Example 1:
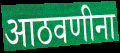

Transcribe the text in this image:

आठवणीना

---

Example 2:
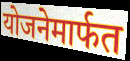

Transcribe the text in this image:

योजनेमार्फत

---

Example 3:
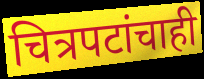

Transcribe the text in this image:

चित्रपटांचाही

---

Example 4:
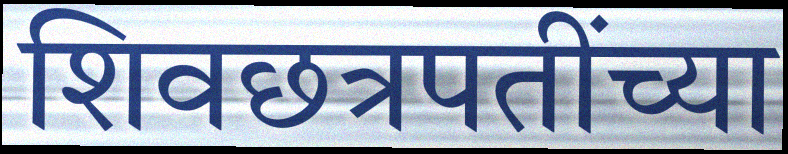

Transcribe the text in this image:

शिवछत्रपतींच्या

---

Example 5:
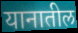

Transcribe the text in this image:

यानातील